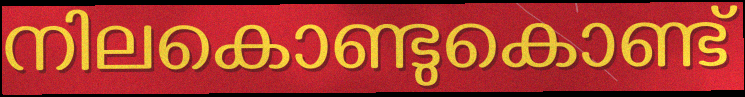
നിലകൊണ്ടുകൊണ്ട്